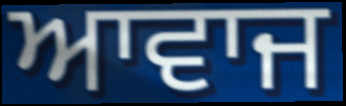
ਆਵਾਜ